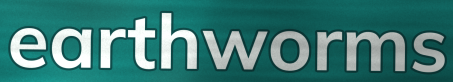
earthworms